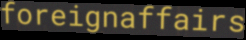
foreignaffairs